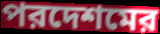
পরদেশমের